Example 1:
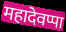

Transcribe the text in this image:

महादेवप्पा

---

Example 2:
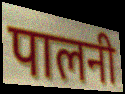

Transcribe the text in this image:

पालनी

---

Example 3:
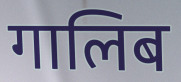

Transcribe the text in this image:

गालिब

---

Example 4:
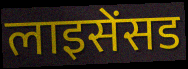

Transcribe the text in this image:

लाइसेंसड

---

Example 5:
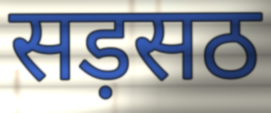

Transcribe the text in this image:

सड़सठ